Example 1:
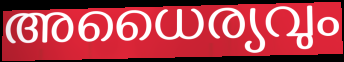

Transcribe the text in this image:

അധൈര്യവും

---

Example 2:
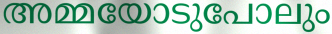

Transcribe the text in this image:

അമ്മയോടുപോലും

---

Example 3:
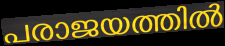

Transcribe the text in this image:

പരാജയത്തിൽ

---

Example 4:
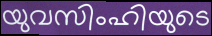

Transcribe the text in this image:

യുവസിംഹിയുടെ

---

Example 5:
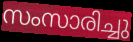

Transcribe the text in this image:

സംസാരിച്ചു